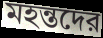
মহন্তদের